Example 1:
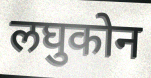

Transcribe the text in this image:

लघुकोन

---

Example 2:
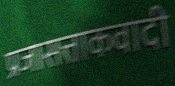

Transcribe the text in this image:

प्रजासत्ताकवादी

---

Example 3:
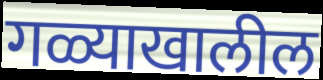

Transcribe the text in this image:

गळ्याखालील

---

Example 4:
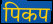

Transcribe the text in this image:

पिकप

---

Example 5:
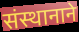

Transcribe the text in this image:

संस्थानाने